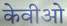
केवीओ